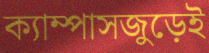
ক্যাম্পাসজুড়েই